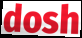
dosh